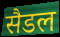
सैडल